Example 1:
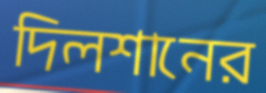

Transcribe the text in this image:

দিলশানের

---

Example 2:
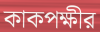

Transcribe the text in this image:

কাকপক্ষীর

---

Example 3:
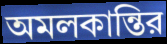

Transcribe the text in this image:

অমলকান্তির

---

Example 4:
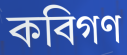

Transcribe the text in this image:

কবিগণ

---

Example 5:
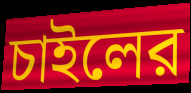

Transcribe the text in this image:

চাইলের